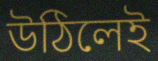
উঠিলেই